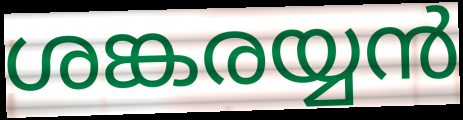
ശങ്കരയ്യൻ